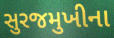
સુરજમુખીના